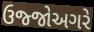
ઉજ્જોઅગરે